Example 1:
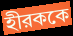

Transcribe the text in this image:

হীরককে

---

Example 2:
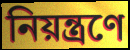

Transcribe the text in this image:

নিয়ন্ত্রণে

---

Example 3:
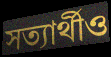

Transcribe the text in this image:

সত্যার্থীও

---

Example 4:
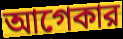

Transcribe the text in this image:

আগেকার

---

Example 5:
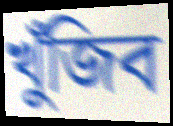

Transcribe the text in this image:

খুঁজিব